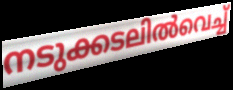
നടുക്കടലിൽവെച്ച്